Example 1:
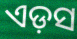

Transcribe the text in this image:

ଏଡ଼ସ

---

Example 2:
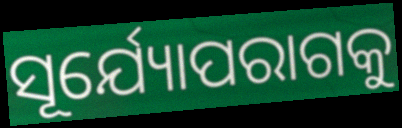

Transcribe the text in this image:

ସୂର୍ଯ୍ୟୋପରାଗକୁ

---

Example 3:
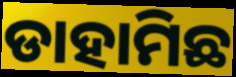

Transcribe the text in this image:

ଡାହାମିଛ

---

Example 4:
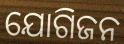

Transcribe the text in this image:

ଯୋଗିଜନ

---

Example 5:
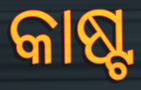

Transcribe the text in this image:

କାଷ୍ଟ